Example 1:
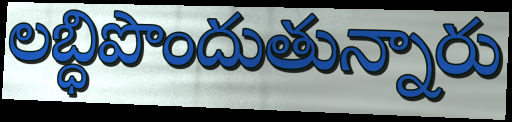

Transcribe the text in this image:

లబ్ధిపొందుతున్నారు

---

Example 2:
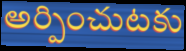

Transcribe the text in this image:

అర్పించుటకు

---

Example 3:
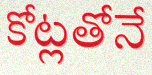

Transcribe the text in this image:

కోట్లతోనే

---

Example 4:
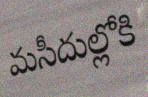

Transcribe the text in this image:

మసీదుల్లోకి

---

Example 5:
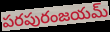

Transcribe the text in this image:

పరపురంజయమ్